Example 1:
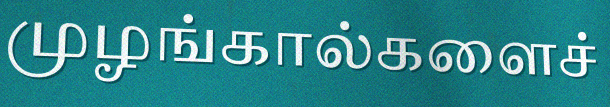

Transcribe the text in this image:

முழங்கால்களைச்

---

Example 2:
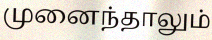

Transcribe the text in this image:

முனைந்தாலும்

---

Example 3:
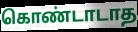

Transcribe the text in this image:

கொண்டாடாத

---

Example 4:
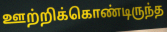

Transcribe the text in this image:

ஊற்றிக்கொண்டிருந்த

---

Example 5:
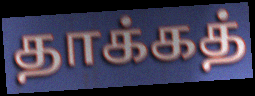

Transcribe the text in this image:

தாக்கத்